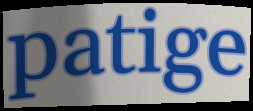
patige